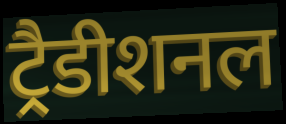
ट्रैडीशनल